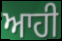
ਆਹੀ